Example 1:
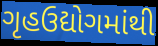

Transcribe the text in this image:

ગૃહઉદ્યોગમાંથી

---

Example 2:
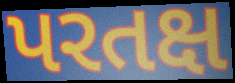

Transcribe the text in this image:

પરતક્ષ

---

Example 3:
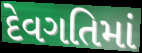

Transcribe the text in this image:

દેવગતિમાં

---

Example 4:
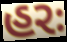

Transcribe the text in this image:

હરઃ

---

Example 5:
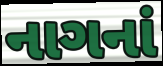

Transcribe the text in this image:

નાગનાં